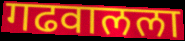
गढवालला